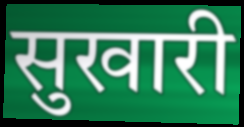
सुखारी